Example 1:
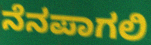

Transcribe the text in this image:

ನೆನಪಾಗಲಿ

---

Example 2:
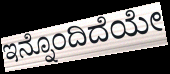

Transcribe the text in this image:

ಇನ್ನೊಂದಿದೆಯೇ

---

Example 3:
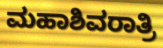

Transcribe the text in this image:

ಮಹಾಶಿವರಾತ್ರಿ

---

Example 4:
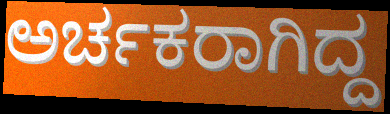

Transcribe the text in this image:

ಅರ್ಚಕರಾಗಿದ್ದ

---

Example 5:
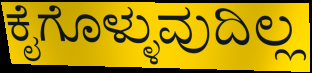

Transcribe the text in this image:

ಕೈಗೊಳ್ಳುವುದಿಲ್ಲ